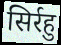
सिर्रहु